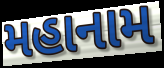
મહાનામ